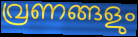
വ്രണങ്ങളും